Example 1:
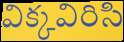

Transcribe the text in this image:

విక్కవిరిసి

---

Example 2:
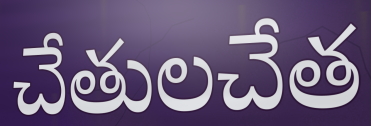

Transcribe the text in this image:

చేతులచేత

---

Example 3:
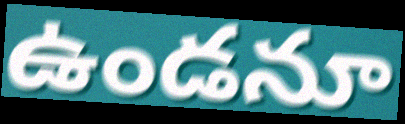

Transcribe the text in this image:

ఉండనూ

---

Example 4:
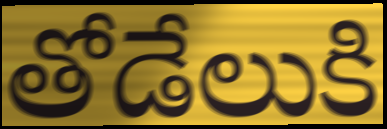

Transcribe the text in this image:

తోడేలుకి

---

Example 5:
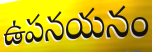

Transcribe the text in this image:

ఉపనయనం